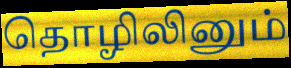
தொழிலினும்